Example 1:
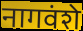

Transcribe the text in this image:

नागवंशे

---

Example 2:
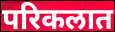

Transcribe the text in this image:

परिकलात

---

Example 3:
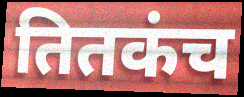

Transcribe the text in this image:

तितकंच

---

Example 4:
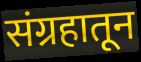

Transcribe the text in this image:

संग्रहातून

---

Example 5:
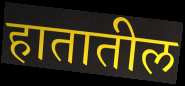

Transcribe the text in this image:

हातातील